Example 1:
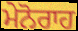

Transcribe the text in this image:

ਮੇਨੋਰਾਹ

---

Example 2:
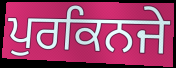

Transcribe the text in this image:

ਪੁਰਕਿਨਜੇ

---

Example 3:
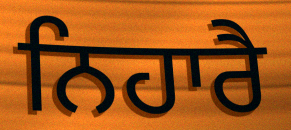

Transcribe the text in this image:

ਨਿਹਾਰੈ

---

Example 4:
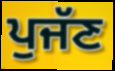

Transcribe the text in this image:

ਪੁਜੱਣ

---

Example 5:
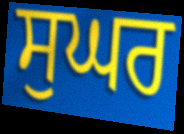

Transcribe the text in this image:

ਸੁਘਰ